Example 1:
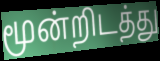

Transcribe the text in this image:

மூன்றிடத்து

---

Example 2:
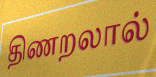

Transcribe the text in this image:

திணறலால்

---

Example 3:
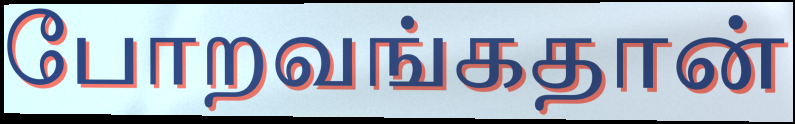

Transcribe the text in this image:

போறவங்கதான்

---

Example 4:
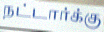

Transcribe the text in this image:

நட்டார்க்கு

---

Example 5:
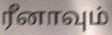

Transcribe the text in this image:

ரீனாவும்